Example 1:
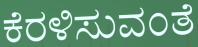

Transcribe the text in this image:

ಕೆರಳಿಸುವಂತೆ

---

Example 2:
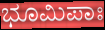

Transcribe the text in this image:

ಭೂಮಿಪಾಃ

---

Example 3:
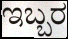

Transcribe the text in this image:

ಇಬ್ಬರ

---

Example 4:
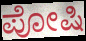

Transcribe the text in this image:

ಪೋಷಿ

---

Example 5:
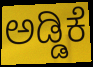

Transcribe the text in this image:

ಅಡ್ಡಿಕೆ